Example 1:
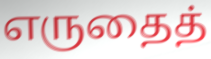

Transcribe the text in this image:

எருதைத்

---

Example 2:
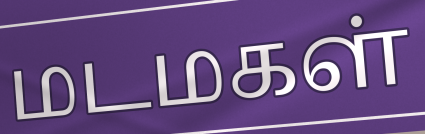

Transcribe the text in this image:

மடமகள்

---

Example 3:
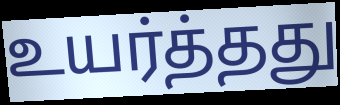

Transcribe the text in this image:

உயர்த்தது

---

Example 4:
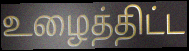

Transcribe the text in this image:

உழைத்திட்ட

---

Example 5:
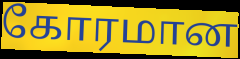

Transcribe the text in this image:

கோரமான